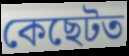
কেছেটত